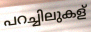
പറച്ചിലുകള്